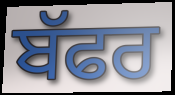
ਬੱਫਰ